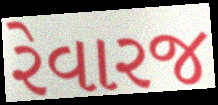
રેવારજ